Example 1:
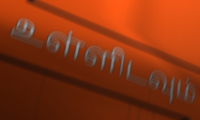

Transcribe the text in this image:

உள்ளிடவும்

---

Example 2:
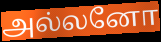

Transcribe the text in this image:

அல்லனோ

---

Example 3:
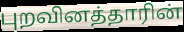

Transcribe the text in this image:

புறவினத்தாரின்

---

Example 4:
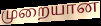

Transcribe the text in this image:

முறையான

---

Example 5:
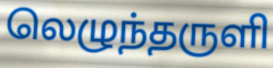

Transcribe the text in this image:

லெழுந்தருளி